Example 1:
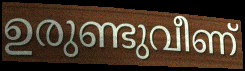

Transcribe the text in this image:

ഉരുണ്ടുവീണ്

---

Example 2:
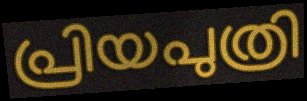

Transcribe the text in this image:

പ്രിയപുത്രി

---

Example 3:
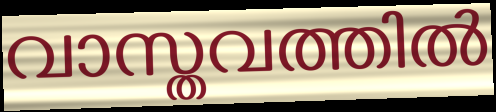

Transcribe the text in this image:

വാസ്തവത്തിൽ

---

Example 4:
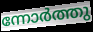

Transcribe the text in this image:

ന്നോർത്തു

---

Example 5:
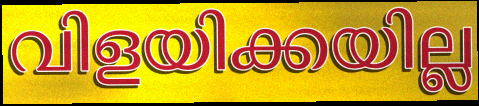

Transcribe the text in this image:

വിളയിക്കയില്ല